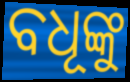
ବଧୂଙ୍କୁ